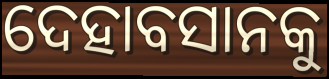
ଦେହାବସାନକୁ